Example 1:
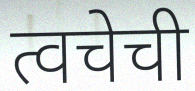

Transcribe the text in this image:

त्वचेची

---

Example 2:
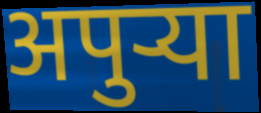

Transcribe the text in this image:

अपुर्‍या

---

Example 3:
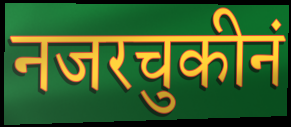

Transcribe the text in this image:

नजरचुकीनं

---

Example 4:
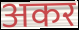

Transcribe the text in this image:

अकर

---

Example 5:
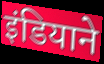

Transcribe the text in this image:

इंडियाने